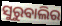
ସୁରୁବାଲିର